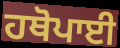
ਹਥੋਪਾਈ